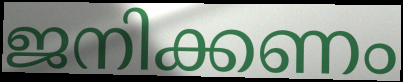
ജനിക്കണം